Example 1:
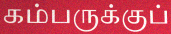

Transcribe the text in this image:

கம்பருக்குப்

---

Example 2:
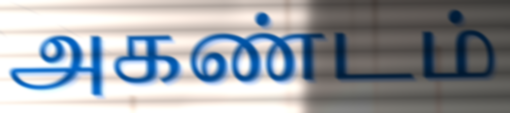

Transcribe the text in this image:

அகண்டம்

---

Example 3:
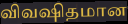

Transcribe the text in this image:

விவஷிதமான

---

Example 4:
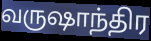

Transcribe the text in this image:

வருஷாந்திர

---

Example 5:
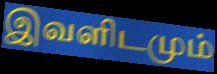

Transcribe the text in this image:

இவளிடமும்